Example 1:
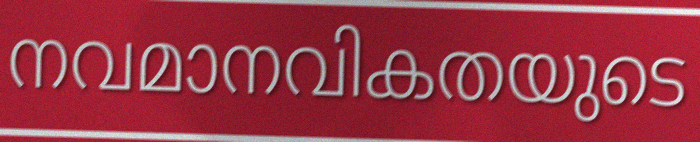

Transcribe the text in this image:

നവമാനവികതയുടെ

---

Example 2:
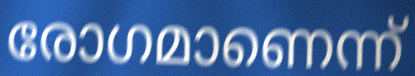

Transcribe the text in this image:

രോഗമാണെന്ന്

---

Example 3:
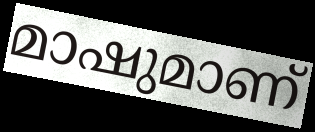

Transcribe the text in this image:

മാഷുമാണ്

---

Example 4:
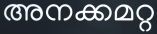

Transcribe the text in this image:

അനക്കമറ്റ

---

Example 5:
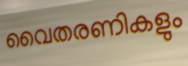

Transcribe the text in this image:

വൈതരണികളും